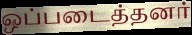
ஒப்படைத்தனர்